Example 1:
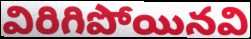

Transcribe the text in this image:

విరిగిపోయినవి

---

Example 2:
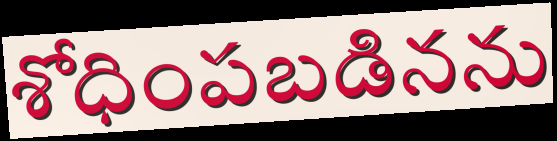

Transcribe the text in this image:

శోధింపబడినను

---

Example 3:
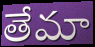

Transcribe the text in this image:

తేమా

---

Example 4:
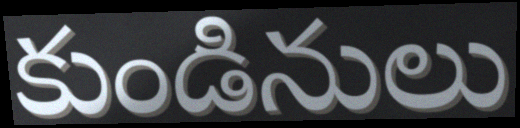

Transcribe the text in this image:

కుండినులు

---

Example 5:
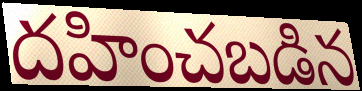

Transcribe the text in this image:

దహించబడిన